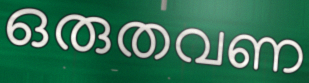
ഒരുതവണ